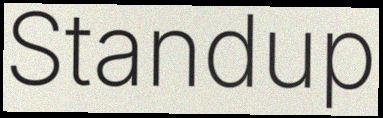
Standup